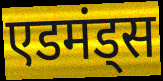
एडमंड्स